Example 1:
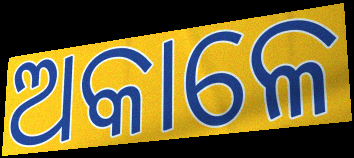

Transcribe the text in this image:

ଅକାଳେ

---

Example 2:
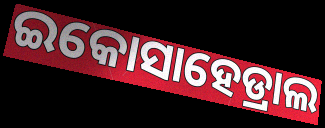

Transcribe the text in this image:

ଇକୋସାହେଡ୍ରାଲ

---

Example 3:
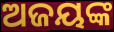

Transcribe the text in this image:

ଅଜୟଙ୍କ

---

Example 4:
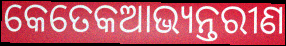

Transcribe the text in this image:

କେତେକଆଭ୍ୟନ୍ତରୀଣ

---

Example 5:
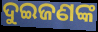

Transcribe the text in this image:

ଦୁଇଜଣଙ୍କ